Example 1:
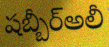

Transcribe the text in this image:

షబ్బీర్అలీ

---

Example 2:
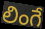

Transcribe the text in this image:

లింగే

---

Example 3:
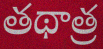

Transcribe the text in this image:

తథాత్ర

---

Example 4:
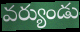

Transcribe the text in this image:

వర్యుండు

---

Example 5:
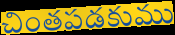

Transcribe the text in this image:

చింతపడకుము